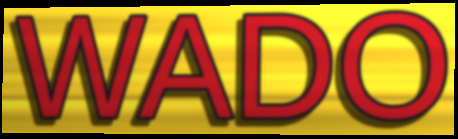
WADO